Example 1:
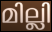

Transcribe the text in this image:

മില്ലി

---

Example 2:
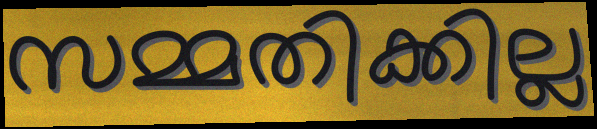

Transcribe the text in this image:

സമ്മതിക്കില്ല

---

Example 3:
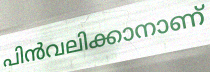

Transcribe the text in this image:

പിൻവലിക്കാനാണ്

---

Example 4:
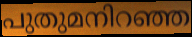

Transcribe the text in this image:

പുതുമനിറഞ്ഞ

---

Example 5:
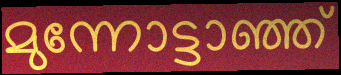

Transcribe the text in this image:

മുന്നോട്ടാഞ്ഞ്